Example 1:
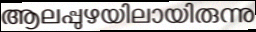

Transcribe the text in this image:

ആലപ്പുഴയിലായിരുന്നു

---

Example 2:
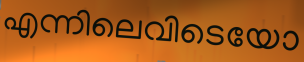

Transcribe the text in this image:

എന്നിലെവിടെയോ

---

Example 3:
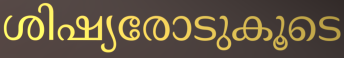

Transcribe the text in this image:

ശിഷ്യരോടുകൂടെ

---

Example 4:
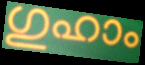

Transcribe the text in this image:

ഗുഹാം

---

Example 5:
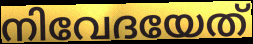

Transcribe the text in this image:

നിവേദയേത്